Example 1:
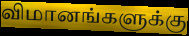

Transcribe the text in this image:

விமானங்களுக்கு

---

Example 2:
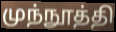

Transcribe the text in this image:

முந்நூத்தி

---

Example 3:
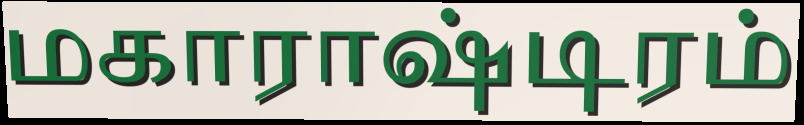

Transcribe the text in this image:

மகாராஷ்டிரம்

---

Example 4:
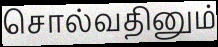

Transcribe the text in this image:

சொல்வதினும்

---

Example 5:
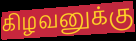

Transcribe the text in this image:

கிழவனுக்கு